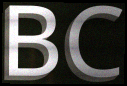
BC